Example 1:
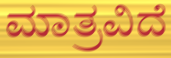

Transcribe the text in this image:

ಮಾತ್ರವಿದೆ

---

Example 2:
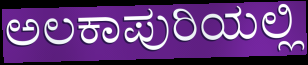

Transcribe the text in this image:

ಅಲಕಾಪುರಿಯಲ್ಲಿ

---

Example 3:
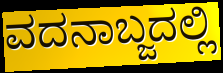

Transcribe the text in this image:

ವದನಾಬ್ಜದಲ್ಲಿ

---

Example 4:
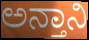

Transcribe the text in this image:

ಅನ್ತಾನಿ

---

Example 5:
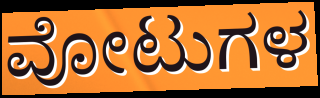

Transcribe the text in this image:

ವೋಟುಗಳ